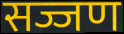
सज्जण